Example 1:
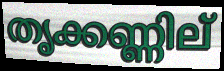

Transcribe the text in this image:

തൃക്കണ്ണില്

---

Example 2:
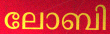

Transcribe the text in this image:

ലോബി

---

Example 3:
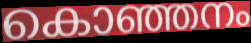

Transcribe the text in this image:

കൊഞ്ഞനം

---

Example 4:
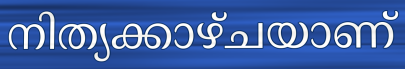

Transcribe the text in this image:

നിത്യക്കാഴ്ചയാണ്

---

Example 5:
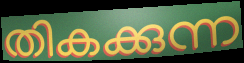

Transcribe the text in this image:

തികക്കുന്ന